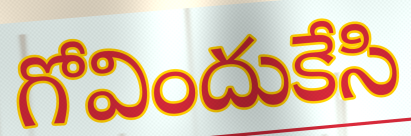
గోవిందుకేసి